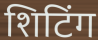
शिटिंग